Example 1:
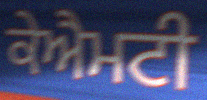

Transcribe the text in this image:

ਕੇਐਮਟੀ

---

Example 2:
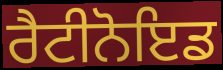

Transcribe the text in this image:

ਰੈਟੀਨੋਇਡ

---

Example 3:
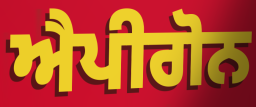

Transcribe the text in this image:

ਐਪੀਗੋਨ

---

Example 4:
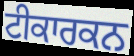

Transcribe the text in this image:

ਟੀਕਾਰਕਨ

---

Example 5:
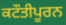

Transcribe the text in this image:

ਕਟੌਤੀਪੂਰਨ